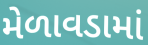
મેળાવડામાં